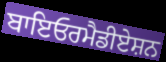
ਬਾਇਓਰਮੈਡੀਏਸ਼ਨ